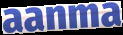
aanma